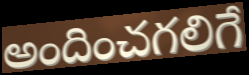
అందించగలిగే